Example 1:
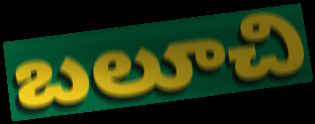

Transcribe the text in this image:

బలూచి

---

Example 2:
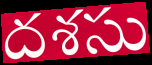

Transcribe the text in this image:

దశసు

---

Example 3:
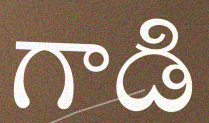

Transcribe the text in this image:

గాడి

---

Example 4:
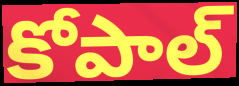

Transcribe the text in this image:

కోపాల్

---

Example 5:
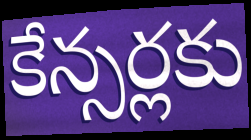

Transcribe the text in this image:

కేన్సర్లకు